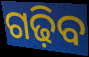
ଗଢ଼ିବ